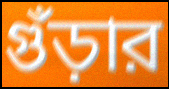
গুঁড়ার